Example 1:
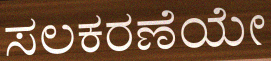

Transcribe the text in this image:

ಸಲಕರಣೆಯೇ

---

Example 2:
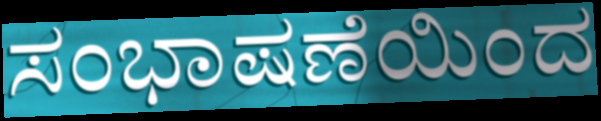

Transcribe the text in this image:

ಸಂಭಾಷಣೆಯಿಂದ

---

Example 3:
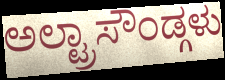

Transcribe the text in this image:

ಅಲ್ಟ್ರಾಸೌಂಡ್ಗಳು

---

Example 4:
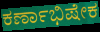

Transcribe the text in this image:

ಕರ್ಣಾಭಿಷೇಕ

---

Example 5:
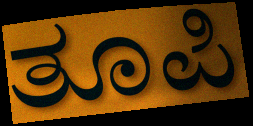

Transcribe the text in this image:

ತೂಪಿ